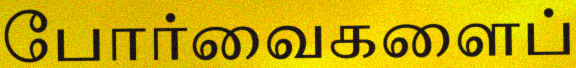
போர்வைகளைப்